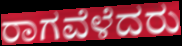
ರಾಗವೆಳೆದರು